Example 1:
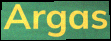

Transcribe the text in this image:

Argas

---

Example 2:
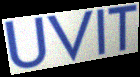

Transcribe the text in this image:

UVIT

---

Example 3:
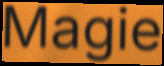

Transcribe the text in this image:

Magie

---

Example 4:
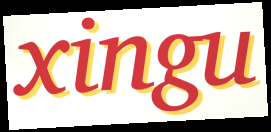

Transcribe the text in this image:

xingu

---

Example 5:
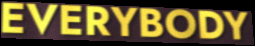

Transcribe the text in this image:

EVERYBODY